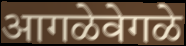
आगळेवेगळे